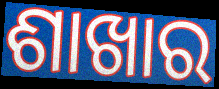
ଶାଖାର